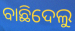
ବାଛିଦେଲୁ